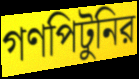
গণপিটুনির